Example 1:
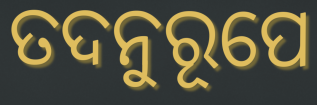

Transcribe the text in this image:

ତଦନୁରୂପେ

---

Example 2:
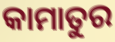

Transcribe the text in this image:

କାମାତୁର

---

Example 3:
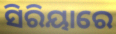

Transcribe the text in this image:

ସିରିୟାରେ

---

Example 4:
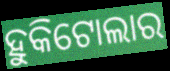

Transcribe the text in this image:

ହୁକିଟୋଲାର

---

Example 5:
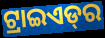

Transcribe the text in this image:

ଟ୍ରାଇଏଡ୍‌ର